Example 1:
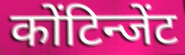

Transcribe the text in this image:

कोंटिन्जेंट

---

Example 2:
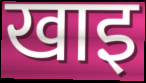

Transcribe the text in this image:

खाइ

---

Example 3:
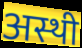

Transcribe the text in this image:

अस्थी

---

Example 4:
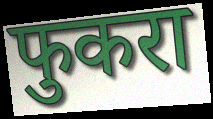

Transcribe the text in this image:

फुकरा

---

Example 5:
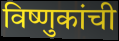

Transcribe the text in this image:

विष्णुकांची